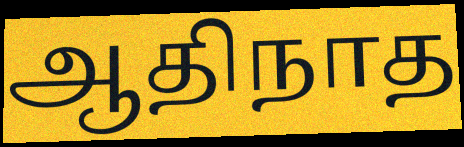
ஆதிநாத